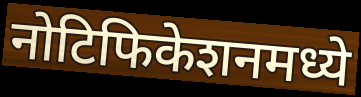
नोटिफिकेशनमध्ये